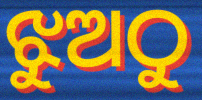
ଝୁଅଠୁ